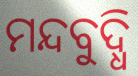
ମନ୍ଦବୁଦ୍ଧି